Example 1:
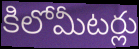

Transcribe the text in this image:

కిలోమీటర్లు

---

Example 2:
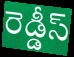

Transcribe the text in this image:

రెడ్డీస్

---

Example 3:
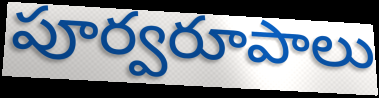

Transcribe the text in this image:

పూర్వరూపాలు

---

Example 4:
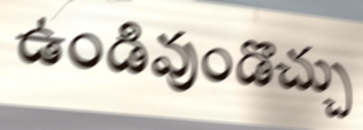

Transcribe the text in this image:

ఉండివుండొచ్చు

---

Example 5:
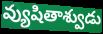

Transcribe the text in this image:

వ్యుషితాశ్వుడు